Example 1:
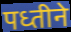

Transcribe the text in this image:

पध्तीने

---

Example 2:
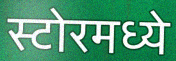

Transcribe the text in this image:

स्टोरमध्ये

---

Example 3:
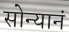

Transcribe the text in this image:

सोन्यानं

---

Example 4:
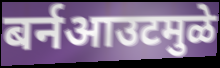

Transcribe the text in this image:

बर्नआउटमुळे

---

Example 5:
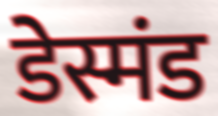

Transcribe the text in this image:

डेस्मंड